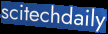
scitechdaily